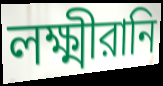
লক্ষ্মীরানি